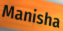
Manisha